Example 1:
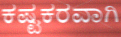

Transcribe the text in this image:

ಕಷ್ಟಕರವಾಗಿ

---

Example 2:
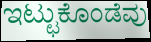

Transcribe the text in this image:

ಇಟ್ಟುಕೊಂಡೆವು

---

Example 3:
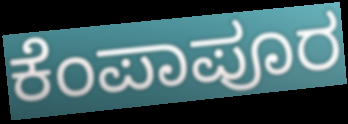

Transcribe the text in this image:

ಕೆಂಪಾಪೂರ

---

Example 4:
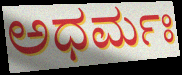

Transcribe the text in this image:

ಅಧರ್ಮಃ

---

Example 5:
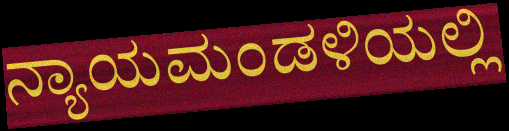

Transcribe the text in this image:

ನ್ಯಾಯಮಂಡಳಿಯಲ್ಲಿ